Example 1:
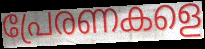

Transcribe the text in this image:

പ്രേരണകളെ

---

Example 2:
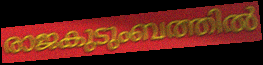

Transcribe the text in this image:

രാജകുടുംബത്തിൽ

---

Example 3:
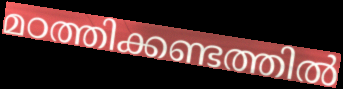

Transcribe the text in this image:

മഠത്തിക്കണ്ടത്തിൽ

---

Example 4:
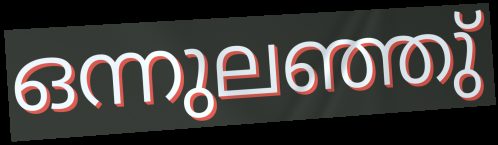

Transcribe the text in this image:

ഒന്നുലഞ്ഞു്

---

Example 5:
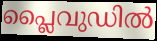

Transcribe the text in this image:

പ്ലൈവുഡിൽ